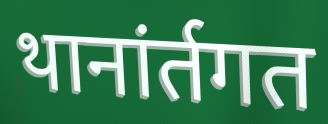
थानांर्तगत